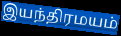
இயந்திரமயம்